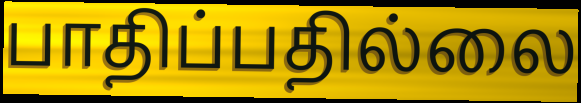
பாதிப்பதில்லை